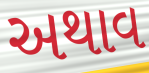
અથાવ